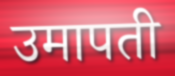
उमापती